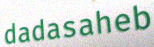
dadasaheb